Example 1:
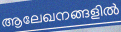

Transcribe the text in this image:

ആലേഖനങ്ങളിൽ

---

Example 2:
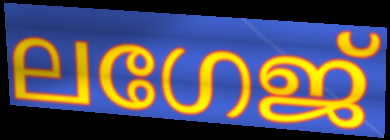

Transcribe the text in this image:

ലഗേജ്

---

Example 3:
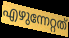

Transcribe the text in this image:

എഴുന്നേറ്റത്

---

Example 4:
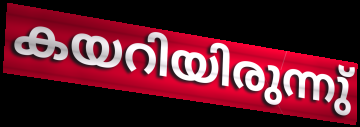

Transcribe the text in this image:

കയറിയിരുന്നു്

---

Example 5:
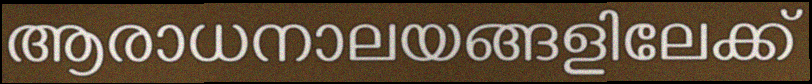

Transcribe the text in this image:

ആരാധനാലയങ്ങളിലേക്ക്